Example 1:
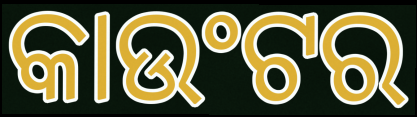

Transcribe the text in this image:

କାଉଂଟର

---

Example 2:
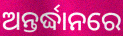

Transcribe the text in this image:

ଅନ୍ତର୍ଦ୍ଧାନରେ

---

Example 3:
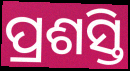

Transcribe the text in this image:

ପ୍ରଶସ୍ତି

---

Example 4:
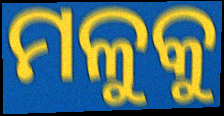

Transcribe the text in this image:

ମଳୁକୁ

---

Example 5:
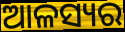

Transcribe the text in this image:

ଆଳସ୍ୟର